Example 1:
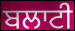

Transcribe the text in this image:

ਬਲਾਟੀ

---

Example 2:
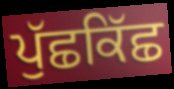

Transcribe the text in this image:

ਪੁੱਛਕਿੱਛ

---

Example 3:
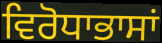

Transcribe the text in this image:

ਵਿਰੋਧਾਭਾਸਾਂ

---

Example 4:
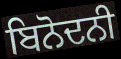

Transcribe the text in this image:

ਬਿਨੋਦਨੀ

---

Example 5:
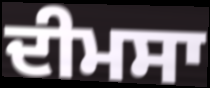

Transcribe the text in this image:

ਦੀਮਸਾ